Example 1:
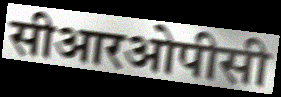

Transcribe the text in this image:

सीआरओपीसी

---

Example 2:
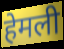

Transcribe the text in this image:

हेमली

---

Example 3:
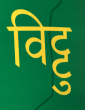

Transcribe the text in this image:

विट्टु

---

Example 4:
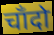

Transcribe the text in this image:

चाँदो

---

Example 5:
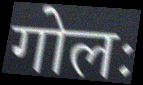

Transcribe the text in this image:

गोलः